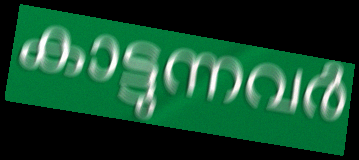
കാട്ടുന്നവർ